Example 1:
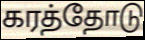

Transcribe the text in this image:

கரத்தோடு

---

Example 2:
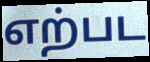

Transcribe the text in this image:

எற்பட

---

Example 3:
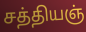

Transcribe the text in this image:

சத்தியஞ்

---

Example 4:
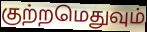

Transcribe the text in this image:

குற்றமெதுவும்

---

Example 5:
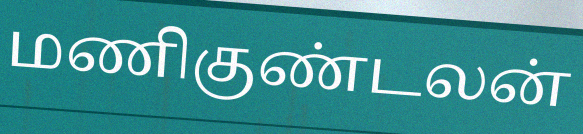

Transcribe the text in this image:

மணிகுண்டலன்